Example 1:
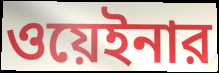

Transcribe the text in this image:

ওয়েইনার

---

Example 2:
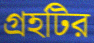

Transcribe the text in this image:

গ্রহটির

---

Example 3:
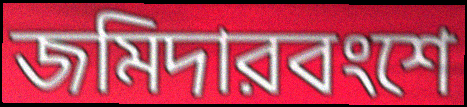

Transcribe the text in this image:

জমিদারবংশে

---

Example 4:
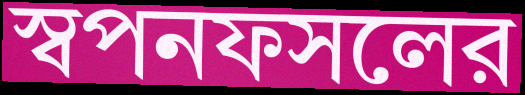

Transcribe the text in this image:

স্বপনফসলের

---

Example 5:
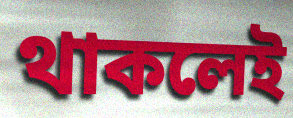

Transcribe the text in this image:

থাকলেই